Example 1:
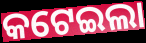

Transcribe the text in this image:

କଟେଇଲା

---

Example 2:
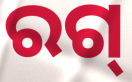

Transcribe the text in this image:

ରଗ୍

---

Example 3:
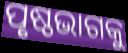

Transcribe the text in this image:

ପୃଷ୍ଠଭାଗକୁ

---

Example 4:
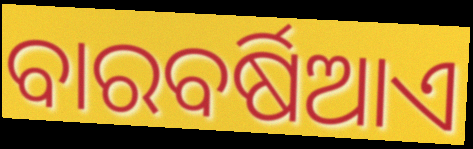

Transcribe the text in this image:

ବାରବର୍ଷିଆଏ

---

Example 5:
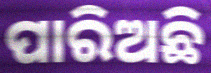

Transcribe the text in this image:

ପାରିଅଛି